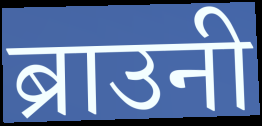
ब्राउनी